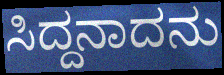
ಸಿದ್ದನಾದನು